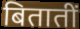
बितातीं